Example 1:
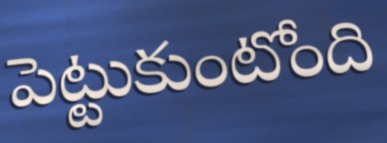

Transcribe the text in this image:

పెట్టుకుంటోంది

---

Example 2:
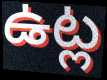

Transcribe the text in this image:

ఉట్ల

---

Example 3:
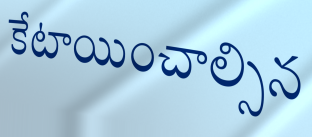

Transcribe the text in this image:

కేటాయించాల్సిన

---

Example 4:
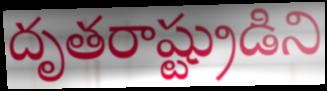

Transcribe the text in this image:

దృతరాష్ట్రుడిని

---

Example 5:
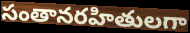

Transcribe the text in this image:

సంతానరహితులగా